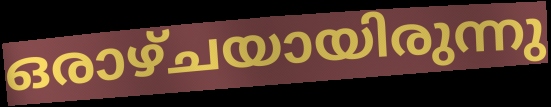
ഒരാഴ്ചയായിരുന്നു